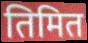
तिमित